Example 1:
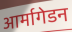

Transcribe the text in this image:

आर्मागेडन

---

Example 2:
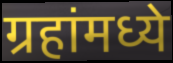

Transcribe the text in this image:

ग्रहांमध्ये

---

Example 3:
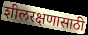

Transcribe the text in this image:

शीलरक्षणासाठी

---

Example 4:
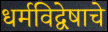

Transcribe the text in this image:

धर्मविद्वेषाचे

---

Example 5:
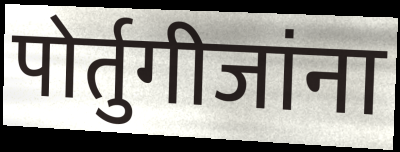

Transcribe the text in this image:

पोर्तुगीजांना